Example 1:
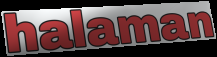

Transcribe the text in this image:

halaman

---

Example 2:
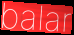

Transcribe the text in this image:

balar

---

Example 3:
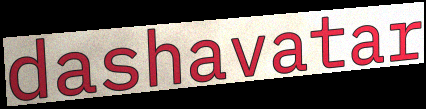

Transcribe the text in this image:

dashavatar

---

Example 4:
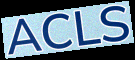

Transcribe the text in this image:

ACLS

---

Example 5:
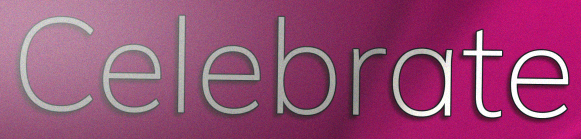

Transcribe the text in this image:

Celebrate